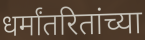
धर्मांतरितांच्या